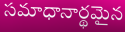
సమాధానార్థమైన